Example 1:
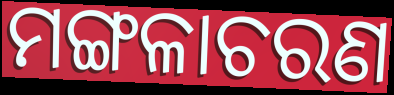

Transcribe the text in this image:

ମଙ୍ଗଳାଚରଣ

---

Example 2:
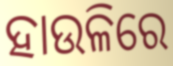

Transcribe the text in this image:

ହାଉଳିରେ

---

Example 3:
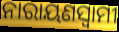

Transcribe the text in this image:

ନାରାୟଣସ୍ଵାମୀ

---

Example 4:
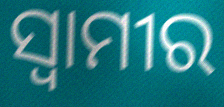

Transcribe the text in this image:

ସ୍ଵାମୀର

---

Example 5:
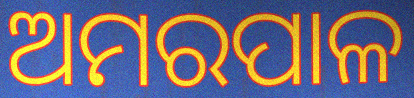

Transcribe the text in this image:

ଅମରପାଳ